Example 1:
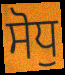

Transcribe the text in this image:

ਸੋਧੁ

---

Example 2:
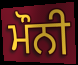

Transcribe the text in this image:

ਮੌਨੀ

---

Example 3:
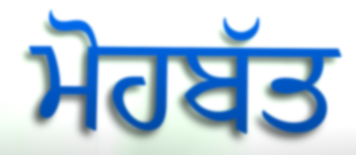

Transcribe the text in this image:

ਮੋਹਬੱਤ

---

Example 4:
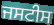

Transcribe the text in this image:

ਜਸਟੀਸ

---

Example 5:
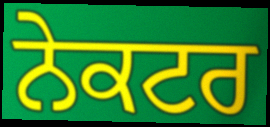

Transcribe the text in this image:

ਨੇਕਟਰ